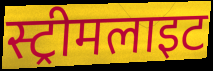
स्ट्रीमलाइट